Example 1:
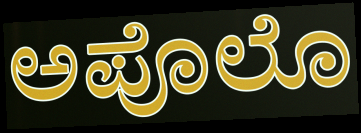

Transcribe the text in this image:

ಅಪೊಲೊ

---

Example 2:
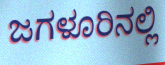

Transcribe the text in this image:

ಜಗಳೂರಿನಲ್ಲಿ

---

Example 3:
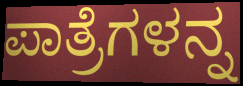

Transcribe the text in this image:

ಪಾತ್ರೆಗಳನ್ನ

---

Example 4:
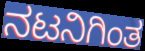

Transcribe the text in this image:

ನಟನಿಗಿಂತ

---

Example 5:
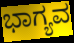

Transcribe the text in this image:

ಭಾಗ್ಯವ